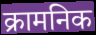
क्रामनिक